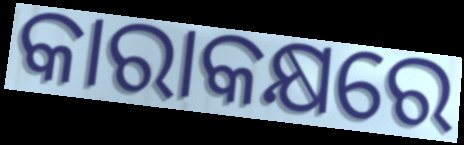
କାରାକକ୍ଷରେ